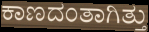
ಕಾಣದಂತಾಗಿತ್ತು